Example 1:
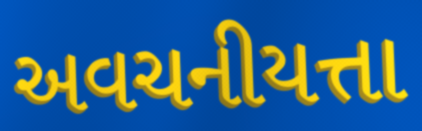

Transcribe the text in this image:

અવચનીયત્તા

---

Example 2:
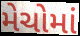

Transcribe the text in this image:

મેચોમાં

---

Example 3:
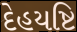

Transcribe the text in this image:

દેહયષ્ટિ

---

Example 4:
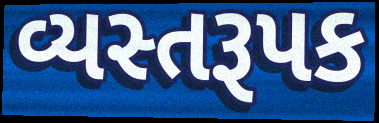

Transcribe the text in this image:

વ્યસ્તરૂપક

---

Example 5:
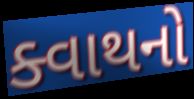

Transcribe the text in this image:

ક્વાથનો